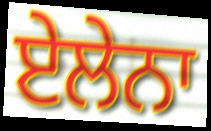
ਏਲੇਨਾ